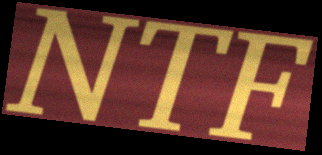
NTF